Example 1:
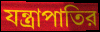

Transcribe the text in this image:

যন্ত্রাপাতির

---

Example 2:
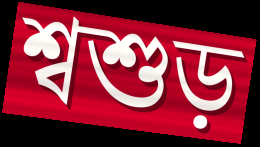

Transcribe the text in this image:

শ্বশুড়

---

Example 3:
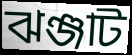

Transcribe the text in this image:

ঝঞ্জাট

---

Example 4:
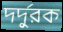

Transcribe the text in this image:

দর্দুরক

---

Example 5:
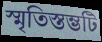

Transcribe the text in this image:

স্মৃতিস্তম্ভটি